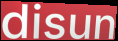
disun